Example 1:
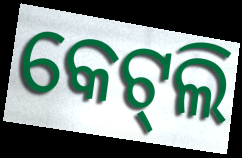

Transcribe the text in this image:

କେଟ୍‌ଲି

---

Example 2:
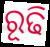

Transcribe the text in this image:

ରୂଢି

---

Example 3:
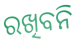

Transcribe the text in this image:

ରଖିବନି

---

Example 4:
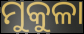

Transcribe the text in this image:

ମୁକୁଳା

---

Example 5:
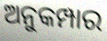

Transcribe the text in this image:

ଅନୁକମ୍ପାର